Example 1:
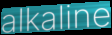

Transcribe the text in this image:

alkaline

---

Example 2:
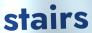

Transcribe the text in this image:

stairs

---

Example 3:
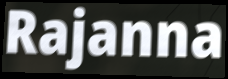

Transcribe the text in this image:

Rajanna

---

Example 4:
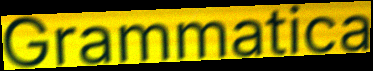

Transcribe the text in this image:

Grammatica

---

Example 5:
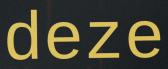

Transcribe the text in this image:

deze